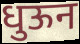
धुऊन